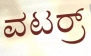
ವಟರ್ರ್